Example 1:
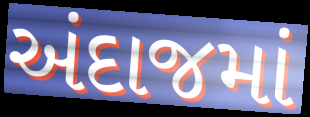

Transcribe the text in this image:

અંદાજમાં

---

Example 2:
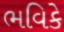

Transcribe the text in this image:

ભવિકે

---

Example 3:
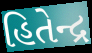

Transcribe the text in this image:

હિતેન્દ્ર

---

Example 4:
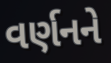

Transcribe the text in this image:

વર્ણનને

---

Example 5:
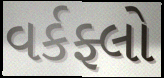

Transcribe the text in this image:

વર્કફ્લો